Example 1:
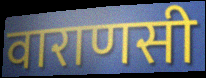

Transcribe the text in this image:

वाराणसी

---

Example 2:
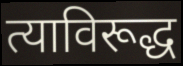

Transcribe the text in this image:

त्याविरूद्ध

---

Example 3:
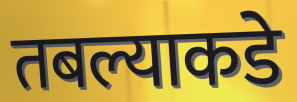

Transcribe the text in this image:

तबल्याकडे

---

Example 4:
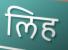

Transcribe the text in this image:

लिह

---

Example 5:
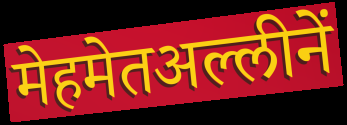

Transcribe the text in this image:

मेहमेतअल्लीनें